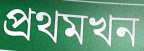
প্ৰথমখন